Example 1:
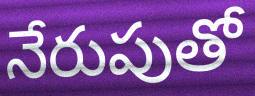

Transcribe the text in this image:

నేరుపుతో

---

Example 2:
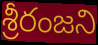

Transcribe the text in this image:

శ్రీరంజని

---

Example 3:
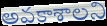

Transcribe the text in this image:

అవకాశాలని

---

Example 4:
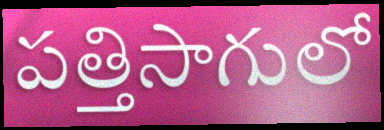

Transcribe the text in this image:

పత్తిసాగులో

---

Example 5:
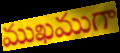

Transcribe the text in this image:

ముఖముగా